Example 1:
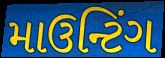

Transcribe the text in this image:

માઉન્ટિંગ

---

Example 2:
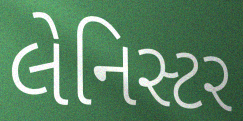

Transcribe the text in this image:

લેનિસ્ટર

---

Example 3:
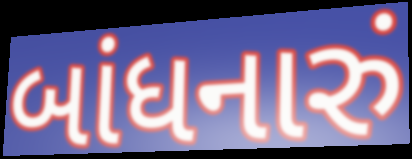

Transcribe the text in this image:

બાંધનારું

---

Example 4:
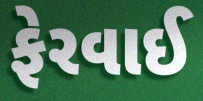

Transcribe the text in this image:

ફેરવાઈ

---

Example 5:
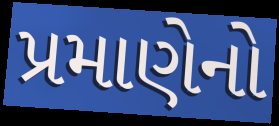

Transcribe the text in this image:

પ્રમાણેનો